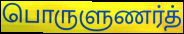
பொருளுணர்த்